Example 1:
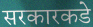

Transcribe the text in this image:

सरकारकडे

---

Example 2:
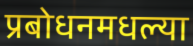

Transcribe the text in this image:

प्रबोधनमधल्या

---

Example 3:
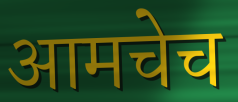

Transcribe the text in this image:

आमचेच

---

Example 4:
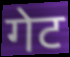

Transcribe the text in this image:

गेट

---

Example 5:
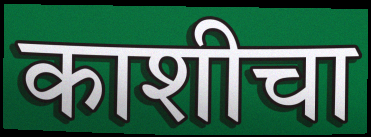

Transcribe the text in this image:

काशीचा